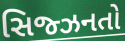
સિજ્ઝનતો